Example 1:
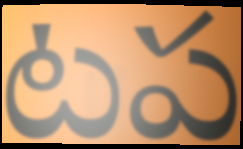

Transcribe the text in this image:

టప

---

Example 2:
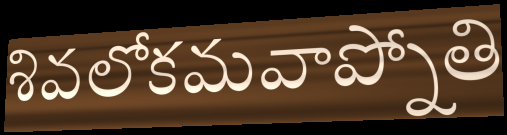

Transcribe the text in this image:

శివలోకమవాప్నోతి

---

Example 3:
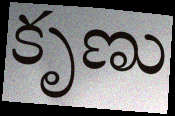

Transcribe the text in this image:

కృణు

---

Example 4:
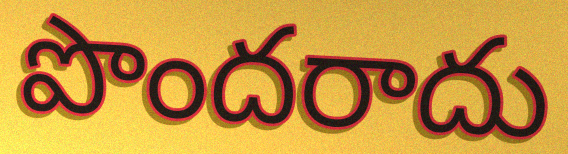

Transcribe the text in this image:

పొందరాదు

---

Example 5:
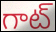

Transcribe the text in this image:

గాట్